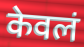
केवलं